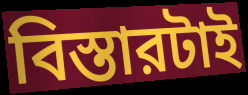
বিস্তারটাই